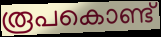
രൂപകൊണ്ട്